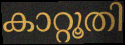
കാറ്റൂതി